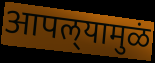
आपल्यामुळं